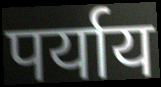
पर्याय